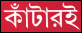
কাঁটারই